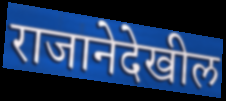
राजानेदेखील